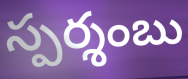
స్పర్శంబు